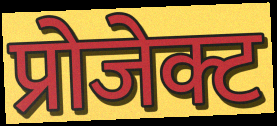
प्रोजेक्ट